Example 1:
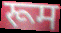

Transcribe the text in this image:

रूम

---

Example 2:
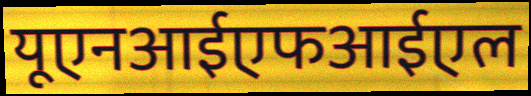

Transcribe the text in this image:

यूएनआईएफआईएल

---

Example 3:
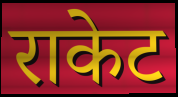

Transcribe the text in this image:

राकेट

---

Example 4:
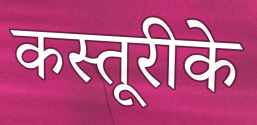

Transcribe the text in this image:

कस्तूरीके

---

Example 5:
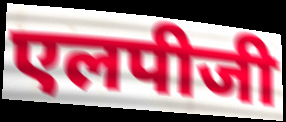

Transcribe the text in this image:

एलपीजी